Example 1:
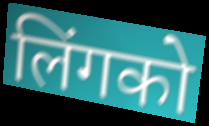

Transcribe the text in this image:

लिंगको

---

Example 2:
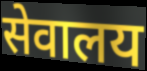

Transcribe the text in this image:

सेवालय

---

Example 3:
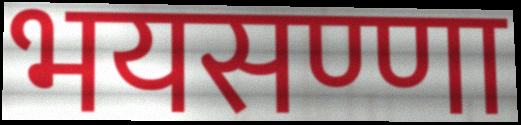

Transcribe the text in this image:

भयसण्णा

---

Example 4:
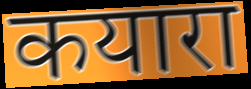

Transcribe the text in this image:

कयारा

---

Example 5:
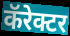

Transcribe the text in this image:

कॅरेक्टर